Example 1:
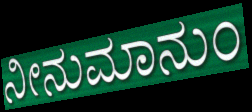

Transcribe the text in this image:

ನೀನುಮಾನುಂ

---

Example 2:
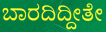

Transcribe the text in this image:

ಬಾರದಿದ್ದೀತೇ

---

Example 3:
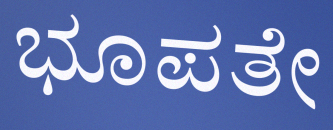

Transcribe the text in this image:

ಭೂಪತೇ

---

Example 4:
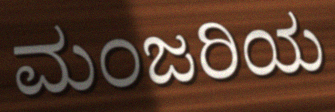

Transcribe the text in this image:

ಮಂಜರಿಯ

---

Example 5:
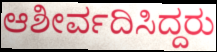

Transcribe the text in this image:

ಆಶೀರ್ವದಿಸಿದ್ದರು